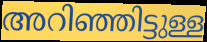
അറിഞ്ഞിട്ടുള്ള